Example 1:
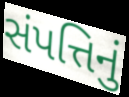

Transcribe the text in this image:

સંપત્તિનું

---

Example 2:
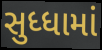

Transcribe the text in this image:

સુધ્ધામાં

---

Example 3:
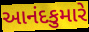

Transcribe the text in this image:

આનંદકુમારે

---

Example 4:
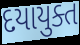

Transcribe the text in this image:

દયાયુક્ત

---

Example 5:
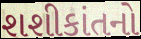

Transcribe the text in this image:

શશીકાંતનો